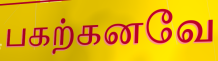
பகற்கனவே